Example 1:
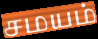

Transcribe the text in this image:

சமயம்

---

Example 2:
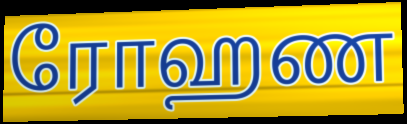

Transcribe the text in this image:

ரோஹண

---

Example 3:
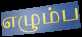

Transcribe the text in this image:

எழும்ப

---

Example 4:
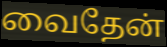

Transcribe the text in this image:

வைதேன்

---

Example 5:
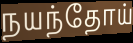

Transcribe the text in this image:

நயந்தோய்